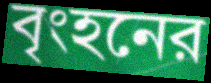
বৃংহনের